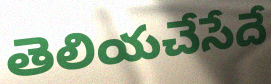
తెలియచేసేదే